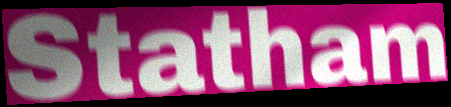
Statham